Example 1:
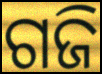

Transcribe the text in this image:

ଗଜି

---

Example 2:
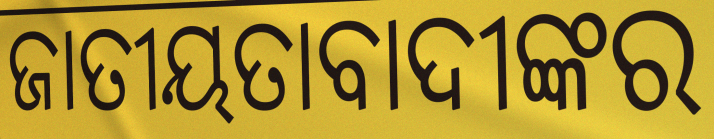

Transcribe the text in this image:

ଜାତୀୟତାବାଦୀଙ୍କର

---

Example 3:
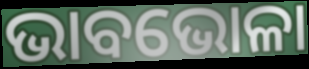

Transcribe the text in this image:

ଭାବଭୋଳା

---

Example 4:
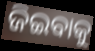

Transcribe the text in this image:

ଜିଇବାକୁ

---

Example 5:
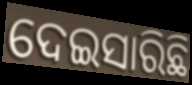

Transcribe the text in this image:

ଦେଇସାରିଛି